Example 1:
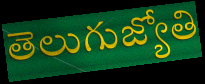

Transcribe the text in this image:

తెలుగుజ్యోతి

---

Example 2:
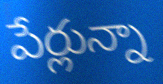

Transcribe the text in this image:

పేర్లున్నా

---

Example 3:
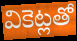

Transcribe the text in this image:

వికెట్లతో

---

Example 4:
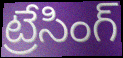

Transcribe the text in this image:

ట్రేసింగ్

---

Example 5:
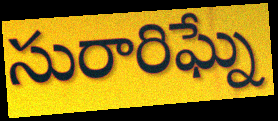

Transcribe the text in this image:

సురారిఘ్నే